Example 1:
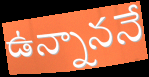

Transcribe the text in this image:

ఉన్నాననే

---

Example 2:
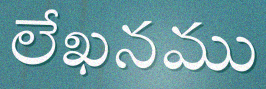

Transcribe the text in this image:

లేఖనము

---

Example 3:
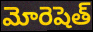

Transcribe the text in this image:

మోరెషెత్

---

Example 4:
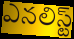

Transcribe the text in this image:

ఎనలిస్ట్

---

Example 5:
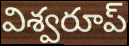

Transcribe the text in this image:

విశ్వరూప్